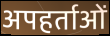
अपहर्ताओं